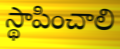
స్థాపించాలి